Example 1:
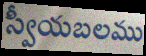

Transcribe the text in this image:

స్వీయబలము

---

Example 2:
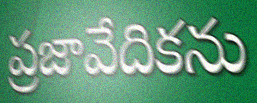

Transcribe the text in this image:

ప్రజావేదికను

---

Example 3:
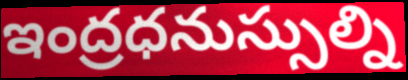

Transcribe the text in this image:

ఇంద్రధనుస్సుల్ని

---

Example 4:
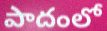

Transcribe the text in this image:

పాదంలో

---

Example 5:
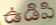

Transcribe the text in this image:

ఉడిపి